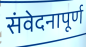
संवेदनापूर्ण